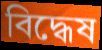
বিদ্ধেষ